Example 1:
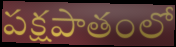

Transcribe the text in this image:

పక్షపాతంలో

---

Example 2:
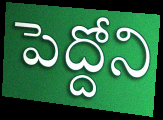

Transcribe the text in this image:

పెద్దోని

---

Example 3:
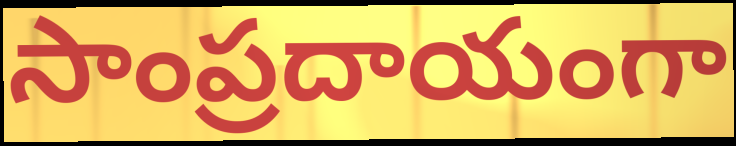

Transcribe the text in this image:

సాంప్రదాయంగా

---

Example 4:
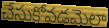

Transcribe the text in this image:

చేసుకోవడమెలా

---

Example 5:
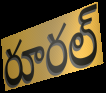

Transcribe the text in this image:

రూరల్